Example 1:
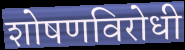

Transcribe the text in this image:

शोषणविरोधी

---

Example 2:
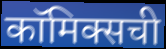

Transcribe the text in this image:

कॉमिक्सची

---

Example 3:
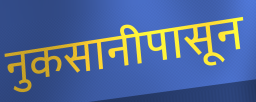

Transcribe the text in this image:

नुकसानीपासून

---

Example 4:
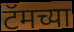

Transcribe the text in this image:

टॅमच्या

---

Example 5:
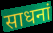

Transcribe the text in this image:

साधनां